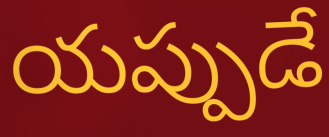
యప్పుడే